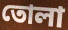
তোলা